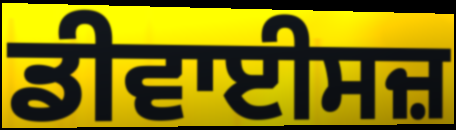
ਡੀਵਾਈਸਜ਼